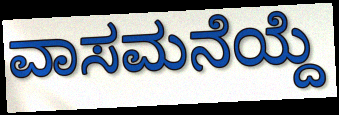
ವಾಸಮನೆಯ್ದೆ